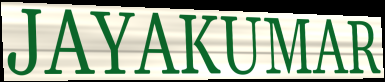
JAYAKUMAR